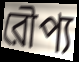
রৌপ্য